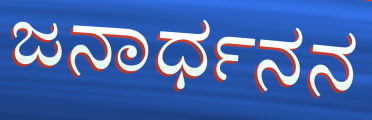
ಜನಾರ್ಧನನ